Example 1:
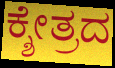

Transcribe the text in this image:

ಕ್ಶೇತ್ರದ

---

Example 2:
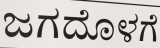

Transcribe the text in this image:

ಜಗದೊಳಗೆ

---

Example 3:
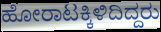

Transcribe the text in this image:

ಹೋರಾಟಕ್ಕಿಳಿದಿದ್ದರು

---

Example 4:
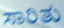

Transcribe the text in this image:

ಸಾರಿತು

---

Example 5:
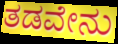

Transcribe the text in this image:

ತಡವೇನು